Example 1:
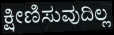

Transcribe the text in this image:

ಕ್ಷೀಣಿಸುವುದಿಲ್ಲ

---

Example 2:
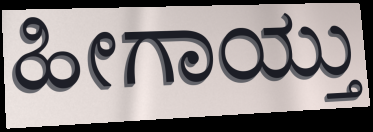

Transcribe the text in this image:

ಹೀಗಾಯ್ತು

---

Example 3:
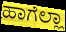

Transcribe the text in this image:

ಹಾಗೆಲ್ಲಾ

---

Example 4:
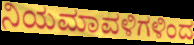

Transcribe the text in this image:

ನಿಯಮಾವಳಿಗಳಿಂದ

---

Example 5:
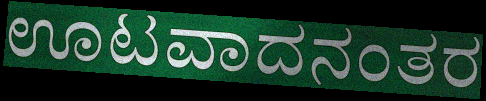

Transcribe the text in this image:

ಊಟವಾದನಂತರ